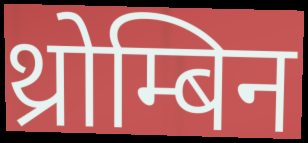
थ्रोम्बिन